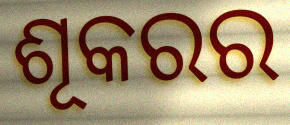
ଶୂକରର